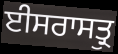
ਈਸਰਾਸਤ੍ਰੁ